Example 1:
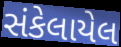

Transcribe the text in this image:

સંકેલાયેલ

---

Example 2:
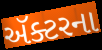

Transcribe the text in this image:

ઍક્ટરના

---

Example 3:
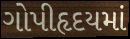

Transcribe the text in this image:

ગોપીહૃદયમાં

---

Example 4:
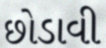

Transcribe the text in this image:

છોડાવી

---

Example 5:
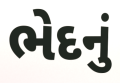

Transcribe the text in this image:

ભેદનું